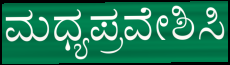
ಮಧ್ಯಪ್ರವೇಶಿಸಿ